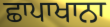
ਛਾਪਾਖਾਨਾ